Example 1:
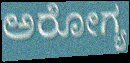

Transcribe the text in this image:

ಅರೋಗ್ಯ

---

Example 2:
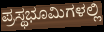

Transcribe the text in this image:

ಪ್ರಸ್ಥಭೂಮಿಗಳಲ್ಲಿ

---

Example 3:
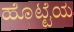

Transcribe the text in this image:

ಹೊಟ್ಟೆಯ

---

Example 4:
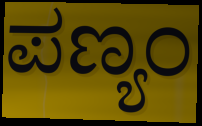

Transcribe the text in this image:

ಪಣ್ಯಂ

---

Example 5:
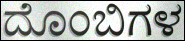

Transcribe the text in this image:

ದೊಂಬಿಗಳ